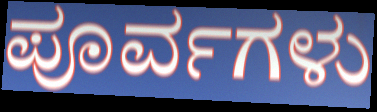
ಪೂರ್ವಗಳು